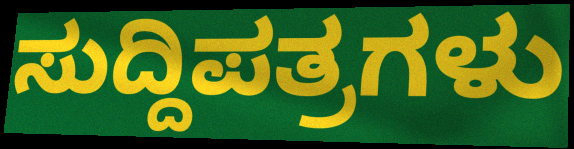
ಸುದ್ದಿಪತ್ರಗಳು